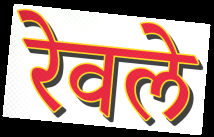
रेवले